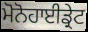
ਮੋਨੋਹਾਈਡ੍ਰੇਟ